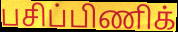
பசிப்பிணிக்